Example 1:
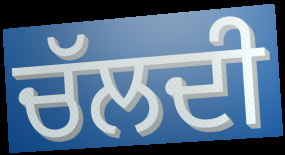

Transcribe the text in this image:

ਚੱਲਦੀ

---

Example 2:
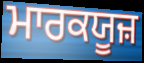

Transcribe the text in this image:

ਮਾਰਕਯੂਜ਼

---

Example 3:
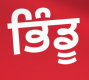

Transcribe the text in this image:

ਭਿੰਡੂ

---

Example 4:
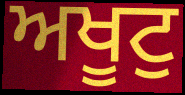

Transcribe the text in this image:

ਅਖੂਟੁ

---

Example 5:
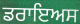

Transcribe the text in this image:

ਡਰਾਇਅਸ